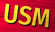
USM